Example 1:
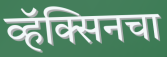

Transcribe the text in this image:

व्हॅक्सिनचा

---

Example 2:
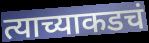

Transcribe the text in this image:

त्याच्याकडचं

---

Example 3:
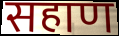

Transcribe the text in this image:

सहाण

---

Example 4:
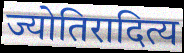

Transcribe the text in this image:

ज्योतिरादित्य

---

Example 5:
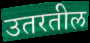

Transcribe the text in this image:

उतरतील